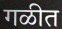
गळीत